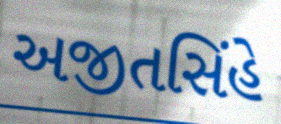
અજીતસિંહે